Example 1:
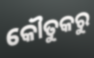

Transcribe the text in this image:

କୌତୁକରୁ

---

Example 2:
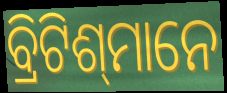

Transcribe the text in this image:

ବ୍ରିଟିଶ୍‍ମାନେ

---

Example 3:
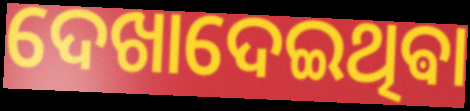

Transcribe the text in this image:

ଦେଖାଦେଇଥିଵା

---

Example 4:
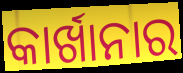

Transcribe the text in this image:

କାର୍ଖାନାର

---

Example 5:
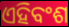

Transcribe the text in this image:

ଏହିବଂଶ